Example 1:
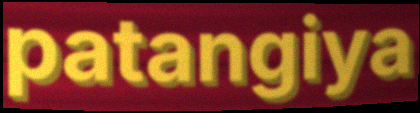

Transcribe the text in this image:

patangiya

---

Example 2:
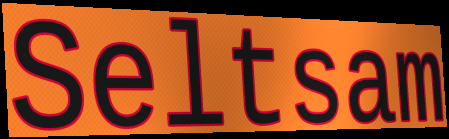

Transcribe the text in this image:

Seltsam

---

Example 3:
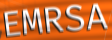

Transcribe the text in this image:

EMRSA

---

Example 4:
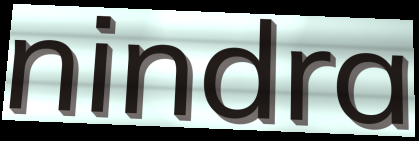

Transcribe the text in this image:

nindra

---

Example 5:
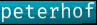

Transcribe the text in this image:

peterhof